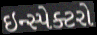
ઇન્સ્પેક્ટરો